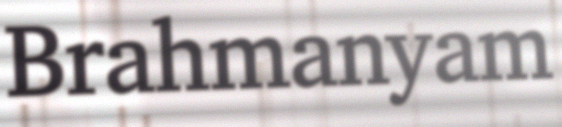
Brahmanyam